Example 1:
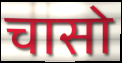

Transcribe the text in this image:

चासो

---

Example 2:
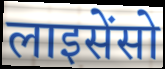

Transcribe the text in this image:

लाइसेंसो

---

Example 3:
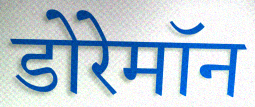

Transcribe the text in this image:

डोरेमॉन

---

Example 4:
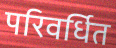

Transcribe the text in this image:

परिवर्धित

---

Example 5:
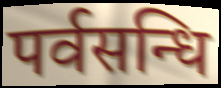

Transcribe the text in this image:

पर्वसन्धि